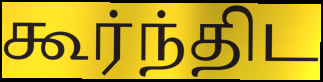
கூர்ந்திட